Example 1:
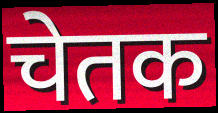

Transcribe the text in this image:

चेतक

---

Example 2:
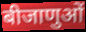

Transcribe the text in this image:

बीजाणुओं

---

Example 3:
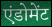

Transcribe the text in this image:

एंडोमेंट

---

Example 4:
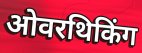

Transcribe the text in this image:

ओवरथिकिंग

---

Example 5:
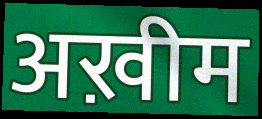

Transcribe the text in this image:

अख़ीम